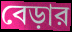
বেড়ার